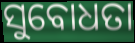
ସୁବୋଧତା